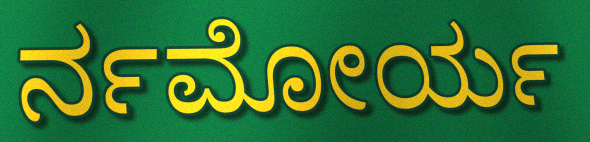
ರ್ನಮೋರ್ಯ